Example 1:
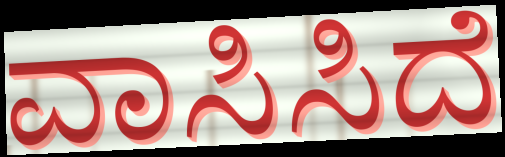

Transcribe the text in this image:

ವಾಸಿಸಿದೆ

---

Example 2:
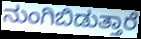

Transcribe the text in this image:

ನುಂಗಿಬಿಡುತ್ತಾರೆ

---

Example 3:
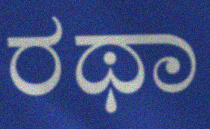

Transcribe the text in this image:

ರಥಾ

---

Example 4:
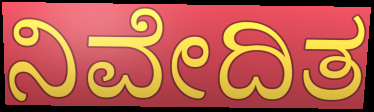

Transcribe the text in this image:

ನಿವೇದಿತ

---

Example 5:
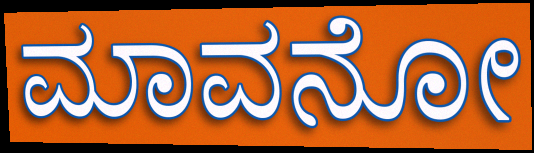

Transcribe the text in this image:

ಮಾವನೋ